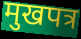
मुखपत्र